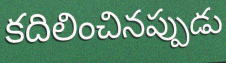
కదిలించినప్పుడు